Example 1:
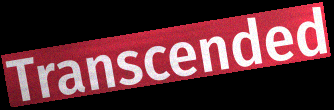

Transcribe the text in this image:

Transcended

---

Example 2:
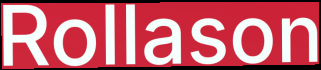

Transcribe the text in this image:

Rollason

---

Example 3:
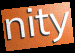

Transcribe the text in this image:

nity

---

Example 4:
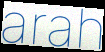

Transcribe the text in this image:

arah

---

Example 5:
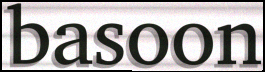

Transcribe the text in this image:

basoon